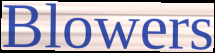
Blowers